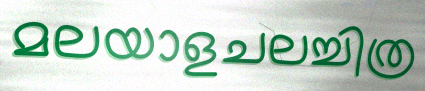
മലയാളചലച്ചിത്ര